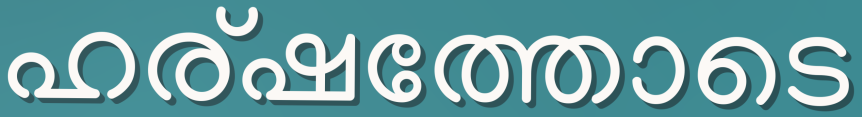
ഹര്ഷത്തോടെ